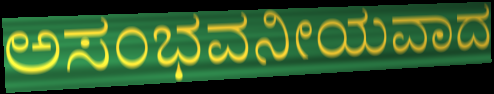
ಅಸಂಭವನೀಯವಾದ